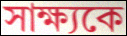
সাক্ষ্যকে